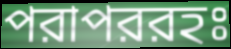
পরাপররহঃ